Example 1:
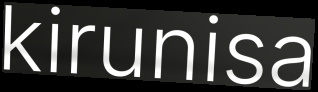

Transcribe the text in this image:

kirunisa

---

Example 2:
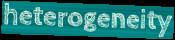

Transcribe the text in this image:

heterogeneity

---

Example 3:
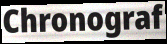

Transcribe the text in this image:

Chronograf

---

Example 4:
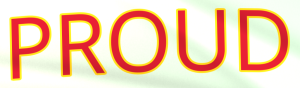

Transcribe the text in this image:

PROUD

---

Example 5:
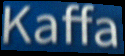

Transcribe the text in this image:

Kaffa